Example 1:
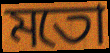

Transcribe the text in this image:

মতো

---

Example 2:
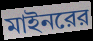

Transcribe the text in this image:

মাইনরের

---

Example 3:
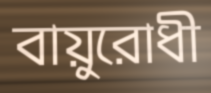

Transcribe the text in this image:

বায়ুরোধী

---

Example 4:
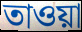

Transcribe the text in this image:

তাওয়া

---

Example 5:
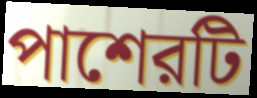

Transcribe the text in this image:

পাশেরটি